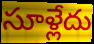
సూళ్లేదు